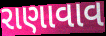
રાણાવાવ